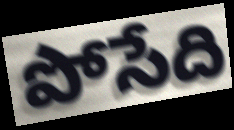
పోసేది